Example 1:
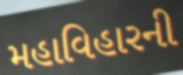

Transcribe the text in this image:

મહાવિહારની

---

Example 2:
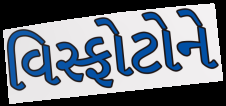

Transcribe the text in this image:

વિસ્ફોટોને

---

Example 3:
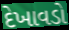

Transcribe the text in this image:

દેખાવડો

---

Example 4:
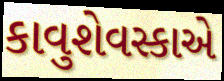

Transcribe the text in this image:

કાવુશેવસ્કાએ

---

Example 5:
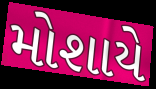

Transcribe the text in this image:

મોશાયે